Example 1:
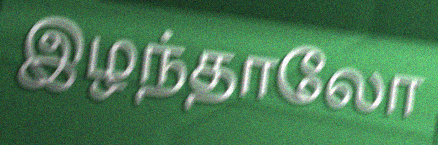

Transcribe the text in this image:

இழந்தாலோ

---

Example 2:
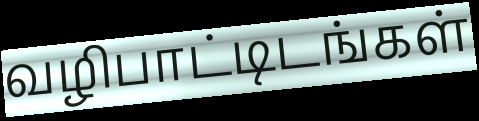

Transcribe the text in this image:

வழிபாட்டிடங்கள்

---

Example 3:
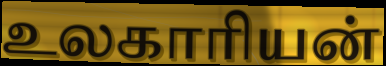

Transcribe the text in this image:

உலகாரியன்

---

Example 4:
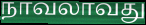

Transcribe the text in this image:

நாவலாவது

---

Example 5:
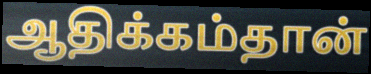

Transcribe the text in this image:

ஆதிக்கம்தான்